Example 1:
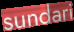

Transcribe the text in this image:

sundari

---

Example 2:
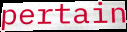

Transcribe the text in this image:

pertain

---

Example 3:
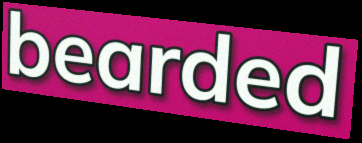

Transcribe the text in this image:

bearded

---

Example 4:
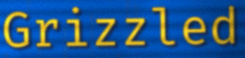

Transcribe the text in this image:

Grizzled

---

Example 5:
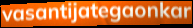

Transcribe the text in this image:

vasantijategaonkar